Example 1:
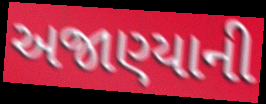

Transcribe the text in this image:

અજાણ્યાની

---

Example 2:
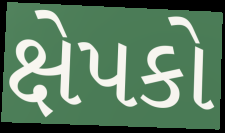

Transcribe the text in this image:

ક્ષેપકો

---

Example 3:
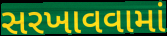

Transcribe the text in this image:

સરખાવવામાં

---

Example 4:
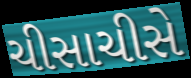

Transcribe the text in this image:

ચીસાચીસે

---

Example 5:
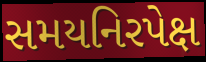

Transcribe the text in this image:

સમયનિરપેક્ષ